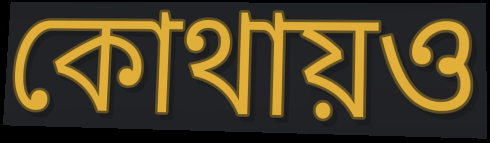
কোথায়ও